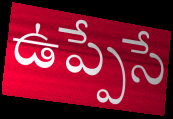
ఉప్పేసే